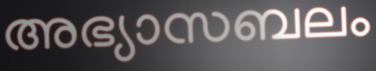
അഭ്യാസബലം